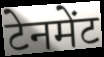
टेनमेंट